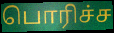
பொரிச்ச